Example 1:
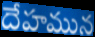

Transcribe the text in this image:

దేహమున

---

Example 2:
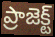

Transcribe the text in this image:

ప్రాజెక్ట్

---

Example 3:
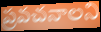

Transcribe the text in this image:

ప్రవచనాలని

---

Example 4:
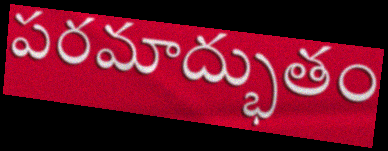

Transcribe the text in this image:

పరమాద్భుతం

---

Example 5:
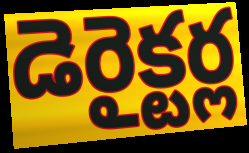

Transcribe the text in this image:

డెరైక్టర్ల